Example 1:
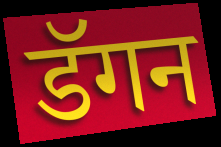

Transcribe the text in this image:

डॅगन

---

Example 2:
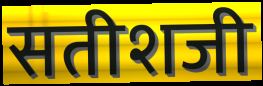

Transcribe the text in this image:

सतीशजी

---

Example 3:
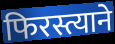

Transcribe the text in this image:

फिरस्त्याने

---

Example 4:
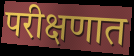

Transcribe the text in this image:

परीक्षणात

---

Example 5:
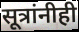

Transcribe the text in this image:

सूत्रांनीही